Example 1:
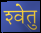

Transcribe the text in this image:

श्वेतु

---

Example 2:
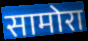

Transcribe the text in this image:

सामोरा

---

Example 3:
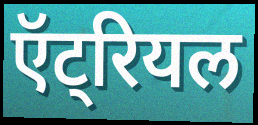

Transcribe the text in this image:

ऍट्रियल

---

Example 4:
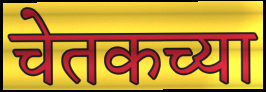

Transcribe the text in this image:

चेतकच्या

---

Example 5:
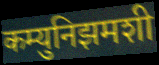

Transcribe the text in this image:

कम्युनिझमशी